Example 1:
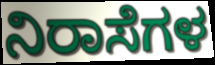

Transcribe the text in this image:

ನಿರಾಸೆಗಳ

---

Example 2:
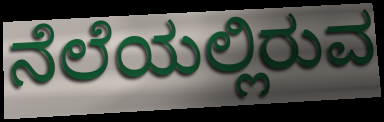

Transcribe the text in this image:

ನೆಲೆಯಲ್ಲಿರುವ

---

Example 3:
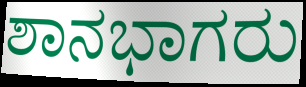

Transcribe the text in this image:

ಶಾನಭಾಗರು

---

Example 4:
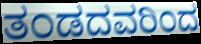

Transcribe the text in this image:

ತಂಡದವರಿಂದ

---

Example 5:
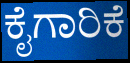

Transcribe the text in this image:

ಕೈಗಾರಿಕೆ